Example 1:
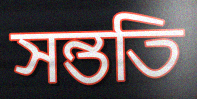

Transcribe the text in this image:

সন্ততি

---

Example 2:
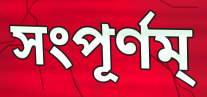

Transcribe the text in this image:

সংপূর্ণম্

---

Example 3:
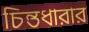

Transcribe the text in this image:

চিন্তধারার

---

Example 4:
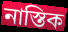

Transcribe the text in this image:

নাস্তিক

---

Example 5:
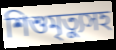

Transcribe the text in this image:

শিশুমৃত্যুসহ